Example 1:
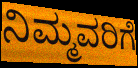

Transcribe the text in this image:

ನಿಮ್ಮವರಿಗೆ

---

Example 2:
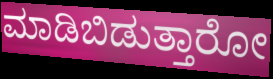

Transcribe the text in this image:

ಮಾಡಿಬಿಡುತ್ತಾರೋ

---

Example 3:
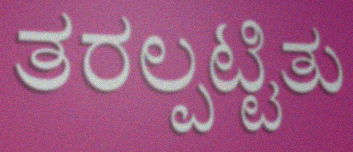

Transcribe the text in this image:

ತರಲ್ಪಟ್ಟಿತು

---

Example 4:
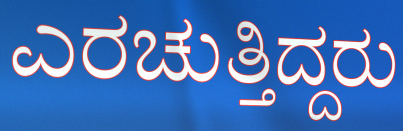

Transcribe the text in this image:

ಎರಚುತ್ತಿದ್ದರು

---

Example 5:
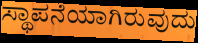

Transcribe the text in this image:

ಸ್ಥಾಪನೆಯಾಗಿರುವುದು